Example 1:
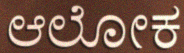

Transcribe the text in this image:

ಆಲೋಕ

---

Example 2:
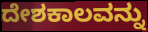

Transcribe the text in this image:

ದೇಶಕಾಲವನ್ನು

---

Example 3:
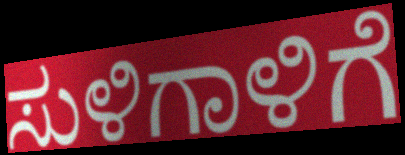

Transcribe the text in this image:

ಸುಳಿಗಾಳಿಗೆ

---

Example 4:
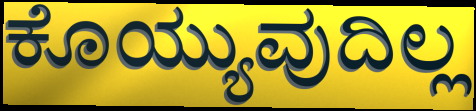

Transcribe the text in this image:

ಕೊಯ್ಯುವುದಿಲ್ಲ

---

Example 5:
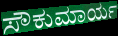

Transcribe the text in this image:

ಸೌಕುಮಾರ್ಯ